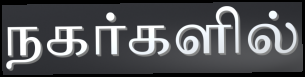
நகர்களில்